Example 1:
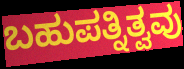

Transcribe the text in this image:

ಬಹುಪತ್ನಿತ್ವವು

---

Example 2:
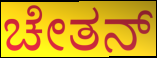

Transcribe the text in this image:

ಚೇತನ್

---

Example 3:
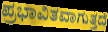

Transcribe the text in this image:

ಪ್ರಭಾವಿತವಾಗುತ್ತದೆ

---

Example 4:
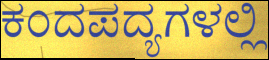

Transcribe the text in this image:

ಕಂದಪದ್ಯಗಳಲ್ಲಿ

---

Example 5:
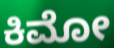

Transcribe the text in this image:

ಕಿಮೋ